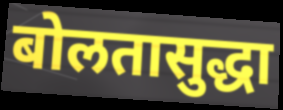
बोलतासुद्धा